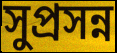
সুপ্রসন্ন